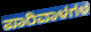
ಪಾರಿವಾಳಗಳ